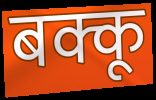
बक्कू